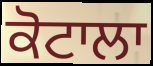
ਕੋਟਾਲਾ